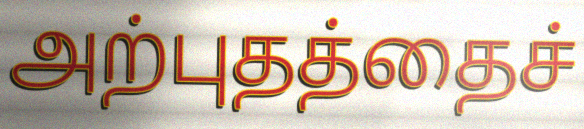
அற்புதத்தைச்